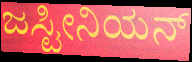
ಜಸ್ಟೀನಿಯನ್